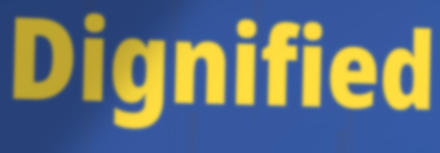
Dignified